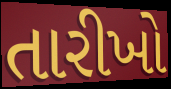
તારીખો